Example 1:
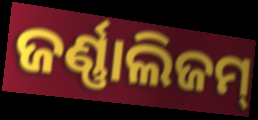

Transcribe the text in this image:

ଜର୍ଣ୍ଣାଲିଜମ୍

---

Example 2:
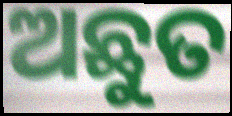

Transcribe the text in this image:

ଅଛୁତ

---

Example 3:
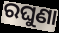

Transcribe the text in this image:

ରଘୁଣା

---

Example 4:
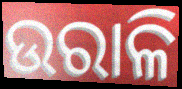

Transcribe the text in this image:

ଉରାଳି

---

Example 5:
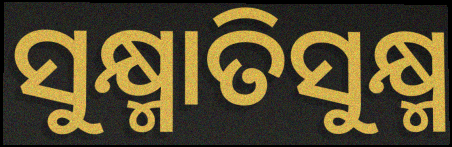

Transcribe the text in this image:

ସୁକ୍ଷ୍ମାତିସୁକ୍ଷ୍ମ